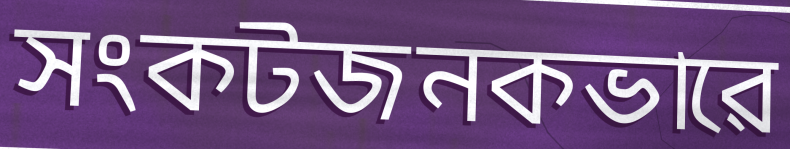
সংকটজনকভাৱে